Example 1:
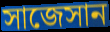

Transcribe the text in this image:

সাজেসান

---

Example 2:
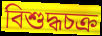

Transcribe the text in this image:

বিশুদ্ধচক্র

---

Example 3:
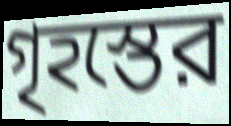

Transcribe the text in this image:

গৃহস্তের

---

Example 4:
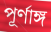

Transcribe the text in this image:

পূর্ণাঙ্গ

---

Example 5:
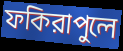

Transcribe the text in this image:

ফকিরাপুলে